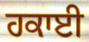
ਹਕਾਈ